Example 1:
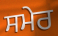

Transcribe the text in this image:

ਸਮੇਰ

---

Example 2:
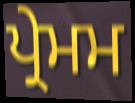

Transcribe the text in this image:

ਪ੍ਰੇਮਮ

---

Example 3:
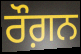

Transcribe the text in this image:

ਰੌਗ਼ਨ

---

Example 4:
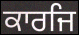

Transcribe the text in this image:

ਕਾਰਜਿ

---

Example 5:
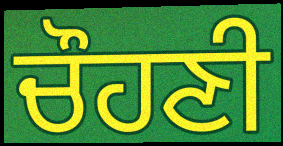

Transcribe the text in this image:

ਚੌਹਣੀ